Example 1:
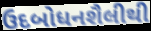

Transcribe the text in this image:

ઉદબોધનશૈલીથી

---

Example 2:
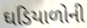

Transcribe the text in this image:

ઘડિયાળોની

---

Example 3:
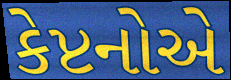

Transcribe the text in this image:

કેપ્ટનોએ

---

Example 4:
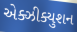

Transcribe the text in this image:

એક્ઝીક્યુશન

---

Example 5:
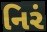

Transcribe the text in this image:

નિરં